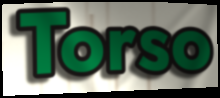
Torso